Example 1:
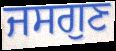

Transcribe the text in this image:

ਜਸਗੁਣ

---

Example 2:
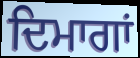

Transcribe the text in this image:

ਦਿਮਾਗਾਂ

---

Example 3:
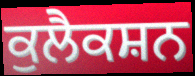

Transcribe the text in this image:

ਕੁਲੈਕਸ਼ਨ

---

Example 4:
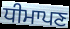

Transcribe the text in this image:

ਧੀਮਾਪਣ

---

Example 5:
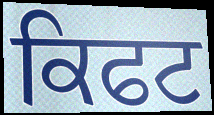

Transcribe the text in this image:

ਕਿਫਟ